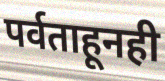
पर्वताहूनही